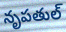
నృపతుల్